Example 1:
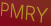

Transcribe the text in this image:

PMRY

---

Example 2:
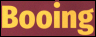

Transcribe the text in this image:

Booing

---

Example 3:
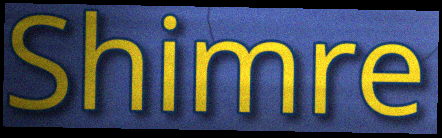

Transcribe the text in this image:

Shimre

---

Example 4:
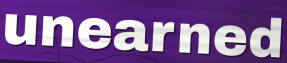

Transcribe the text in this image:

unearned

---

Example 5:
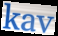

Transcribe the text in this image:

kav